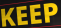
KEEP